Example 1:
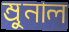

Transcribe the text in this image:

ম্রুনাল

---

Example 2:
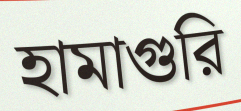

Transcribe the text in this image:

হামাগুরি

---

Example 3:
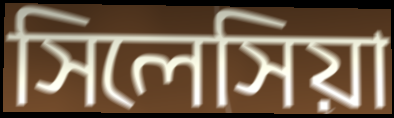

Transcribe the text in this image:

সিলেসিয়া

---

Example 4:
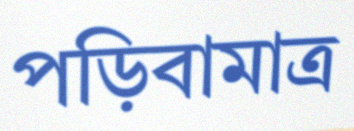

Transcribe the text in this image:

পড়িবামাত্র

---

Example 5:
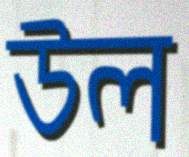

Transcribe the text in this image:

উল